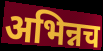
अभिन्नच